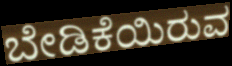
ಬೇಡಿಕೆಯಿರುವ